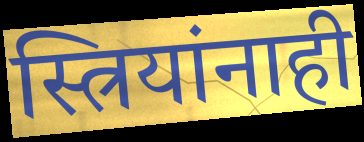
स्त्रियांनाही